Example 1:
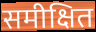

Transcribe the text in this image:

समीक्षित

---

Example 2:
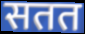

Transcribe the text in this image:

सतत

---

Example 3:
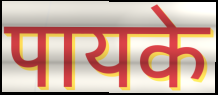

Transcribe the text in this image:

पायके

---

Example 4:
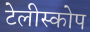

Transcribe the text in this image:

टेलीस्कोप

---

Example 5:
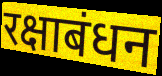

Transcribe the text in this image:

रक्षाबंधन